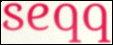
seqq